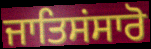
ਜਾਤਿਸਂਸਾਰੋ